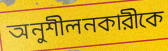
অনুশীলনকারীকে